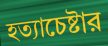
হত্যাচেষ্টার